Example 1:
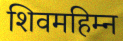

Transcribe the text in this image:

शिवमहिम्न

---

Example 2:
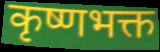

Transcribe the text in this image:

कृष्णभक्त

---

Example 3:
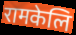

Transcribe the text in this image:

रामकेलि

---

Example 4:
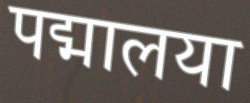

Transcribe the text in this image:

पद्मालया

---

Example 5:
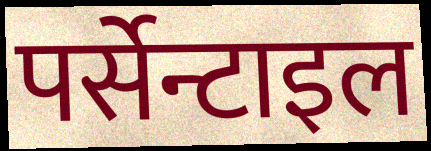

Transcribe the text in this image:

पर्सेन्टाइल